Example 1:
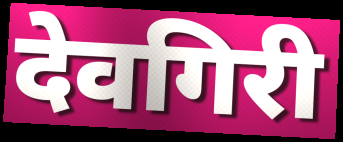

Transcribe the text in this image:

देवगिरी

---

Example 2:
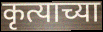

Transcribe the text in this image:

कृत्याच्या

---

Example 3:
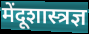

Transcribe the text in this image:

मेंदूशास्त्रज्ञ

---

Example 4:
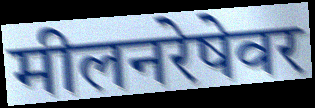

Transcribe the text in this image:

मीलनरेषेवर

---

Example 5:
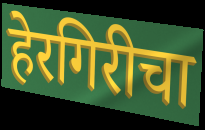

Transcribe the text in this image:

हेरगिरीचा